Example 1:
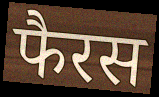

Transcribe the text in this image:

फैरस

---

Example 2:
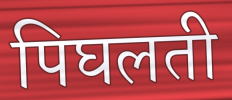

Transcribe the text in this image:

पिघलती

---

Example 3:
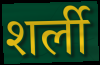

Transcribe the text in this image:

शर्ली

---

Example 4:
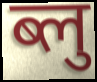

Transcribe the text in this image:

ब्लु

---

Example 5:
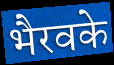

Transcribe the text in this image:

भैरवके